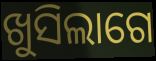
ଖୁସିଲାଗେ